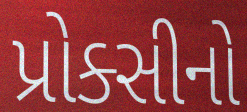
પ્રોક્સીનો